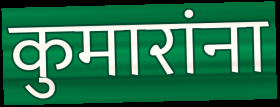
कुमारांना